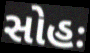
સોહઃ